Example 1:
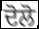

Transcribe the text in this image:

ਦੋਲੋ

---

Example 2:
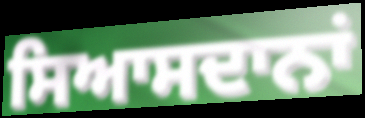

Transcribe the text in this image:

ਸਿਆਸਦਾਨਾਂ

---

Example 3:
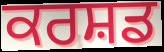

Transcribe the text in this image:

ਕਰਸ਼ਡ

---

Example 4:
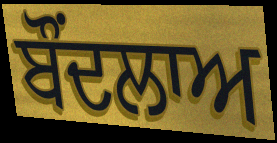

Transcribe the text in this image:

ਬੌਂਦਲਾਅ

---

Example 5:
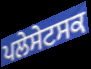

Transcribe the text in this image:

ਪਲੇਸੇਟਸਕ